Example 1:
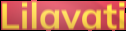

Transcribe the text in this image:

Lilavati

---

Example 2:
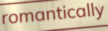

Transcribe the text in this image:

romantically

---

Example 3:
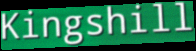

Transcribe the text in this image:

Kingshill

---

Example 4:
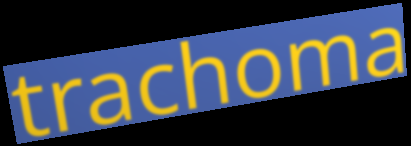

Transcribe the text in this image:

trachoma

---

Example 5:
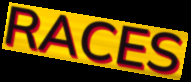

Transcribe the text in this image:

RACES